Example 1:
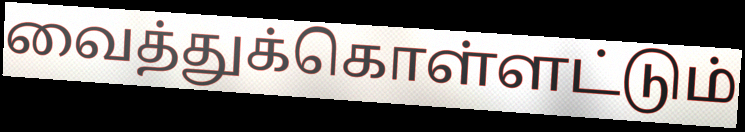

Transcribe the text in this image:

வைத்துக்கொள்ளட்டும்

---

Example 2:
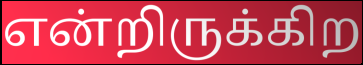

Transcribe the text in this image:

என்றிருக்கிற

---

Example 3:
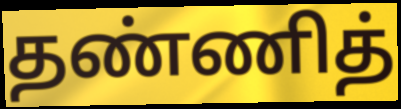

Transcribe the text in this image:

தண்ணித்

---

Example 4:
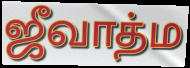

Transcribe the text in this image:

ஜீவாத்ம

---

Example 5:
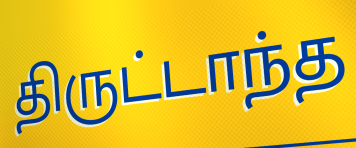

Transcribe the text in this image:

திருட்டாந்த